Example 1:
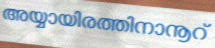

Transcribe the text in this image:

അയ്യായിരത്തിനാനൂറ്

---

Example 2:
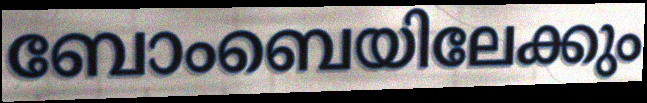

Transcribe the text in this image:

ബോംബെയിലേക്കും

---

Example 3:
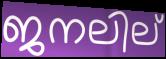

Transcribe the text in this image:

ജനലില്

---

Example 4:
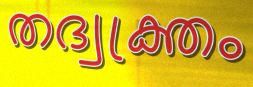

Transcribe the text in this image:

തദ്വക്ത്രം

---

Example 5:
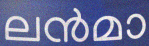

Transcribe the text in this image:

ലൻമാ